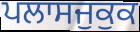
ਪਲਾਸਜੁਕੁਕ